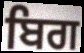
ਬਿਗ